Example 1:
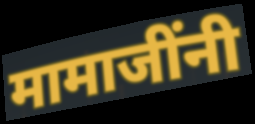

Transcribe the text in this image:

मामाजींनी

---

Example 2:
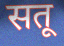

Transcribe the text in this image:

सतू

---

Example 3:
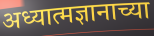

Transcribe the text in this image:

अध्यात्मज्ञानाच्या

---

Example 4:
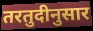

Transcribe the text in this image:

तरतुदीनुसार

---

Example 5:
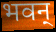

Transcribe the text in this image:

भवन्